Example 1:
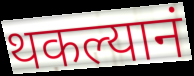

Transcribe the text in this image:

थकल्यानं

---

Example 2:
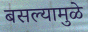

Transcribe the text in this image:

बसल्यामुळे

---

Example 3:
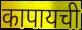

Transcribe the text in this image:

कापायची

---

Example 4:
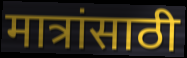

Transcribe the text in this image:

मात्रांसाठी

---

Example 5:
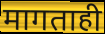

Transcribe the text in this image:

मागताही